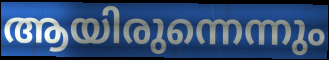
ആയിരുന്നെന്നും